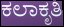
ಕಲಾಕೃತಿ